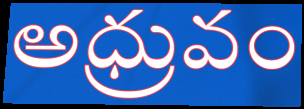
అధ్రువం